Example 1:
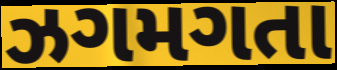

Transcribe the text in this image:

ઝગમગતા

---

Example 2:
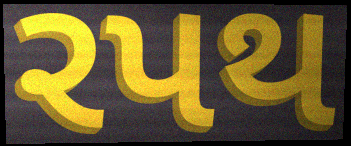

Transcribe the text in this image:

રપથ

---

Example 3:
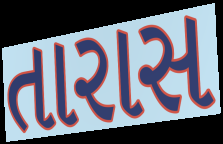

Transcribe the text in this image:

તારાસ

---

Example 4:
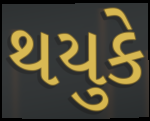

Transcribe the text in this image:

થયુકે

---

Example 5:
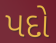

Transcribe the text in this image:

પદો